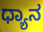
ಧ್ಯಾನ